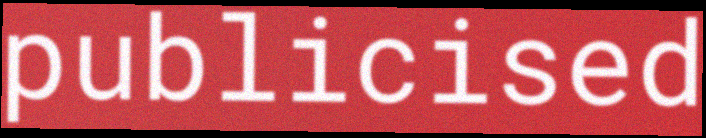
publicised